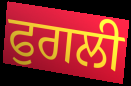
ਫੁਗਲੀ